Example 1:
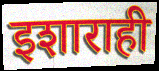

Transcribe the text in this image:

इशाराही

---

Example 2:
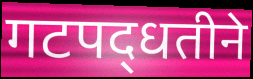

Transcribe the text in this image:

गटपद्धतीने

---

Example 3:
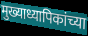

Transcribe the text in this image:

मुख्याध्यापिकांच्या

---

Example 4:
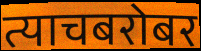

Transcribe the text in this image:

त्याचबरोबर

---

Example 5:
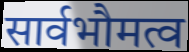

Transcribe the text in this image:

सार्वभौमत्व